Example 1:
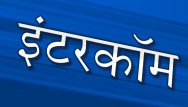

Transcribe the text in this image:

इंटरकॉम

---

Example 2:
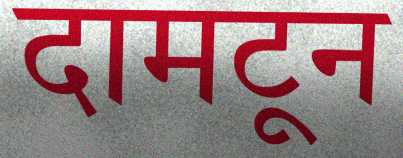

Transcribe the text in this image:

दामटून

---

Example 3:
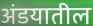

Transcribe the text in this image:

अंडयातील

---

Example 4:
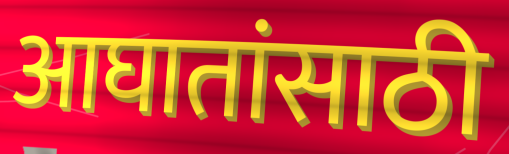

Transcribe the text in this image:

आघातांसाठी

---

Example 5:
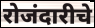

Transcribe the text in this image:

रोजंदारीचे